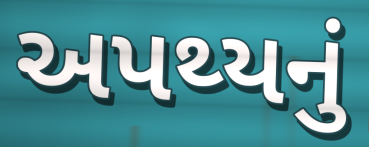
અપથ્યનું